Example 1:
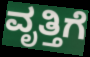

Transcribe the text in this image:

ವೃತ್ತಿಗೆ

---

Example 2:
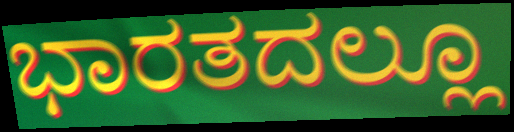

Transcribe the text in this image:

ಭಾರತದಲ್ಲೂ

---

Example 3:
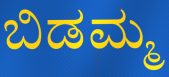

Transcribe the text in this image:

ಬಿಡಮ್ಮ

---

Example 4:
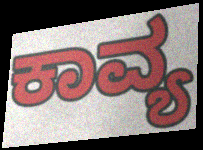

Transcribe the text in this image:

ಕಾವ್ಯ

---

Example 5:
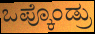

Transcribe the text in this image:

ಒಪ್ಕೊಂಡ್ರು